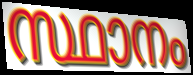
സ്ഥാനം